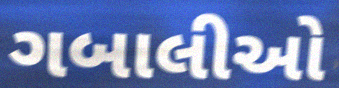
ગબાલીઓ